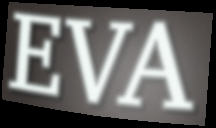
EVA